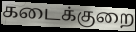
கடைக்குறை